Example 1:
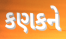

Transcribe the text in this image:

કણકને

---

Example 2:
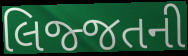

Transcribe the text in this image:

લિજ્જતની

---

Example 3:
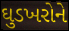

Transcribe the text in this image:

ઘુડખરોને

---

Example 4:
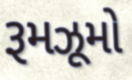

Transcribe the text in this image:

રૂમઝૂમો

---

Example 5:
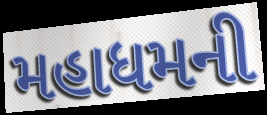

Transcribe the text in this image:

મહાધમની